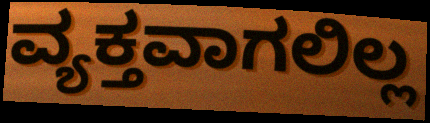
ವ್ಯಕ್ತವಾಗಲಿಲ್ಲ